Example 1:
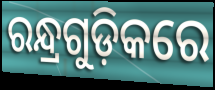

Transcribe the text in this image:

ରନ୍ଧ୍ରଗୁଡ଼ିକରେ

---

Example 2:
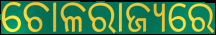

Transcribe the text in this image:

ଚୋଳରାଜ୍ୟରେ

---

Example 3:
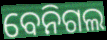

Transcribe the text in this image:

ବେନିଗଲ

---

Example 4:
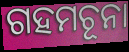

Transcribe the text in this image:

ଗହମଚୂନା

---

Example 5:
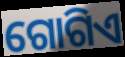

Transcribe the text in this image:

ଗୋଗିଏ